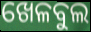
ଖେଳବୁଲ